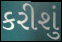
કરીશું